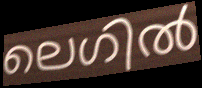
ലെഗിൽ